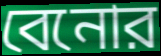
বেনোর